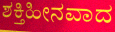
ಶಕ್ತಿಹೀನವಾದ